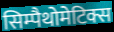
सिम्पैथोमेटिक्स